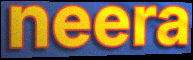
neera